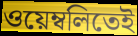
ওয়েম্বলিতেই